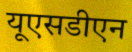
यूएसडीएन